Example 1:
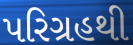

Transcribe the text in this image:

પરિગ્રહથી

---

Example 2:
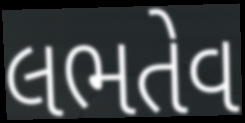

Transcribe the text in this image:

લભતેવ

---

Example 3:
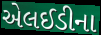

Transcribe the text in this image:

એલઈડીના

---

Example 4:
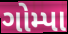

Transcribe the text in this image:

ગોમ્પા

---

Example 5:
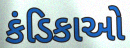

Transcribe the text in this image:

કંડિકાઓ